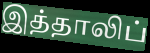
இத்தாலிப்